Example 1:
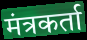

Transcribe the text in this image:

मंत्रकर्ता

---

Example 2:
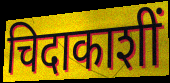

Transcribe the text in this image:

चिदाकाशीं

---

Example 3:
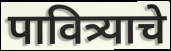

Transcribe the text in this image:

पावित्र्याचे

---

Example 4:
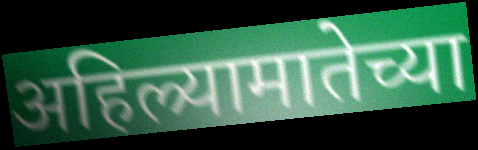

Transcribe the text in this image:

अहिल्यामातेच्या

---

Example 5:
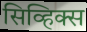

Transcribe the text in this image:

सिव्हिक्स